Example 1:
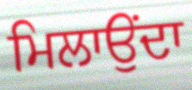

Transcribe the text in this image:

ਮਿਲਾਉਂਦਾ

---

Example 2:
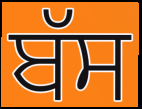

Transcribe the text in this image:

ਬੱਸ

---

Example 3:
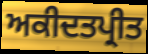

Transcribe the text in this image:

ਅਕੀਦਤਪ੍ਰੀਤ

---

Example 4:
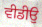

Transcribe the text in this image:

ਵੀਡੀਉ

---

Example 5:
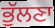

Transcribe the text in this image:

ਭੁੱਲਣਾ